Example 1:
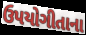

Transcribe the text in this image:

ઉપયોગીતાના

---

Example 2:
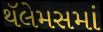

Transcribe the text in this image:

થૅલેમસમાં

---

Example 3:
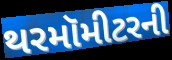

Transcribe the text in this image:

થરમૉમીટરની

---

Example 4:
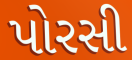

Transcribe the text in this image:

પોરસી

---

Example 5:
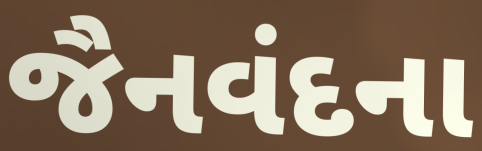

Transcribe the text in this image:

જૈનવંદના